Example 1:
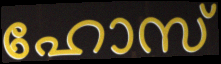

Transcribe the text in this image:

ഹോസ്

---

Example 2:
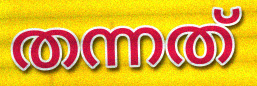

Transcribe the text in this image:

തന്നത്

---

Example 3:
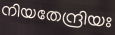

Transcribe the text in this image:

നിയതേന്ദ്രിയഃ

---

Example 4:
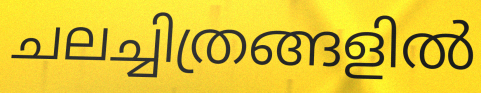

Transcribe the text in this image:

ചലച്ചിത്രങ്ങളിൽ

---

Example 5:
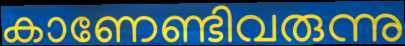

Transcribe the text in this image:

കാണേണ്ടിവരുന്നു